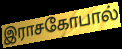
இராசகோபால்